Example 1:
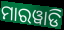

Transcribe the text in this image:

ମାରୱାଡି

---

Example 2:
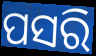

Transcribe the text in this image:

ପସରି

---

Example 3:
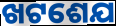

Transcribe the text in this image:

ଖଟଶେଯ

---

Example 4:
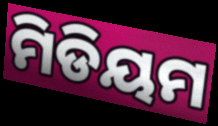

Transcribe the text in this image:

ମିଡିୟମ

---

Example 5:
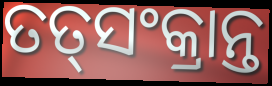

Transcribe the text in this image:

ତତ୍‌ସଂକ୍ରାନ୍ତ